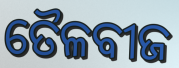
ତୈଳବୀଜ